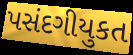
પસંદગીયુકત